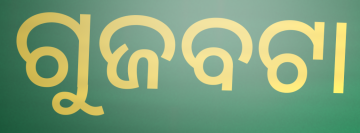
ଗୁଜବଟା